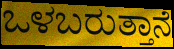
ಒಳಬರುತ್ತಾನೆ